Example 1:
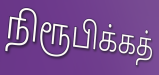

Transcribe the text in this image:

நிரூபிக்கத்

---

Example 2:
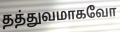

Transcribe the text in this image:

தத்துவமாகவோ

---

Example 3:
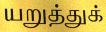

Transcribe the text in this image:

யறுத்துக்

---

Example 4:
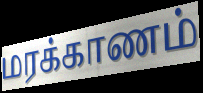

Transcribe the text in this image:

மரக்காணம்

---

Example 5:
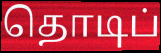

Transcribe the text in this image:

தொடிப்